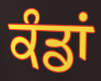
ਕੰਡਾਂ